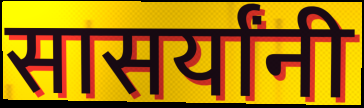
सासर्यांनी